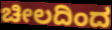
ಚೀಲದಿಂದ